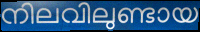
നിലവിലുണ്ടായ